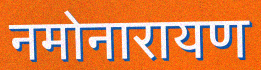
नमोनारायण